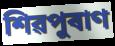
শিৱপুৰাণ